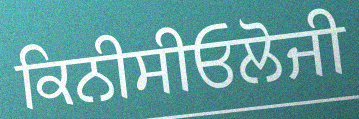
ਕਿਨੀਸੀਓਲੋਜੀ